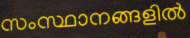
സംസ്ഥാനങ്ങളിൽ